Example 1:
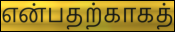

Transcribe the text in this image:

என்பதற்காகத்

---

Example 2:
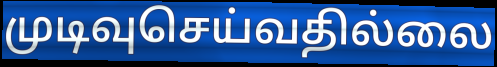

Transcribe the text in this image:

முடிவுசெய்வதில்லை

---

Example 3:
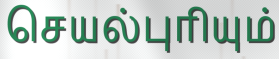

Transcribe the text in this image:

செயல்புரியும்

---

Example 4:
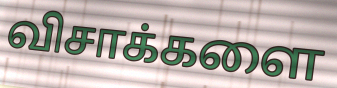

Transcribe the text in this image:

விசாக்களை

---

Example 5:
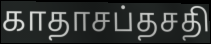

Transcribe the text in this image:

காதாசப்தசதி